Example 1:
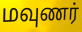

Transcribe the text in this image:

மவுணர்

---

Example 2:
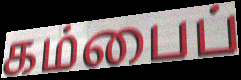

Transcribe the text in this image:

கம்பைப்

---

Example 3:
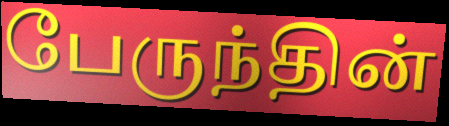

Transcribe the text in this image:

பேருந்தின்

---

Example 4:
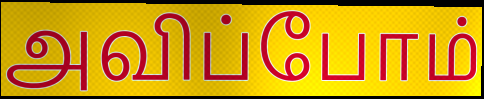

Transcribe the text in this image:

அவிப்போம்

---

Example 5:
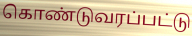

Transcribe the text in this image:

கொண்டுவரப்பட்டு